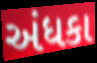
અંધકા